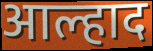
आल्हाद